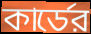
কার্ডের